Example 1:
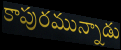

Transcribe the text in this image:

కాపురమున్నాడు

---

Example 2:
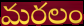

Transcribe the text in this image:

మరలం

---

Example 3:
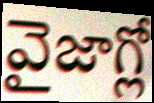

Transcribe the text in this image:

వైజాగ్లో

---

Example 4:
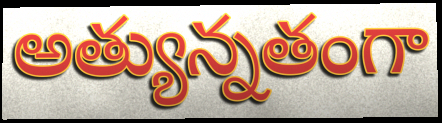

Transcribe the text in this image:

అత్యున్నతంగా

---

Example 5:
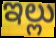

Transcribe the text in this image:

ఇల్లు